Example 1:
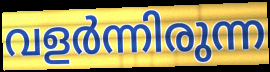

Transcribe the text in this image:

വളർന്നിരുന്ന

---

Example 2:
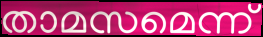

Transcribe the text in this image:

താമസമെന്ന്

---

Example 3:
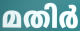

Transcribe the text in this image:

മതിർ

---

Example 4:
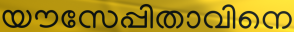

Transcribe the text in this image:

യൗസേപ്പിതാവിനെ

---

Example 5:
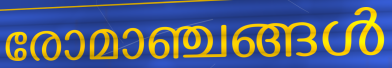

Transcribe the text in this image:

രോമാഞ്ചങ്ങൾ